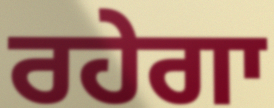
ਰਹੇਗਾ